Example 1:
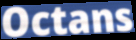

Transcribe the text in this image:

Octans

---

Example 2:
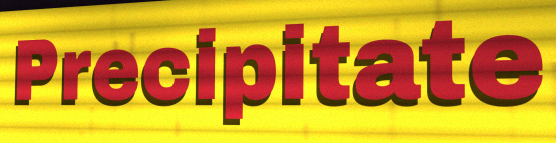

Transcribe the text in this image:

Precipitate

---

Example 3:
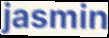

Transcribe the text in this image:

jasmin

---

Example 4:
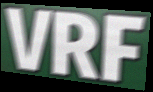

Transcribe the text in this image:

VRF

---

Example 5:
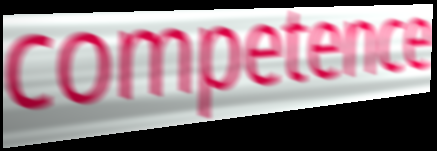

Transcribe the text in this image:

competence